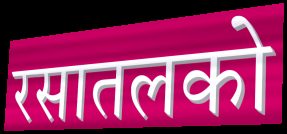
रसातलको